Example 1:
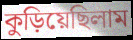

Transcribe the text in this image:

কুড়িয়েছিলাম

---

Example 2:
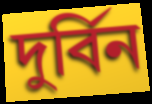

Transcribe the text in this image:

দুর্বিন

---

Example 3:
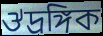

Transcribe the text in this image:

ঔদ্রঙ্গিক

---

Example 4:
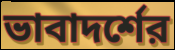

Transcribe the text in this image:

ভাবাদর্শের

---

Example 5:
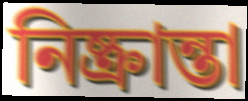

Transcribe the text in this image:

নিষ্ক্রান্তা